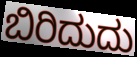
ಬಿರಿದುದು